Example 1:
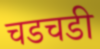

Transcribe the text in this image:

चडचडी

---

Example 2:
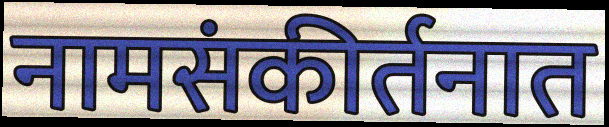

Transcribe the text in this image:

नामसंकीर्तनात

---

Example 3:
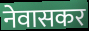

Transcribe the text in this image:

नेवासकर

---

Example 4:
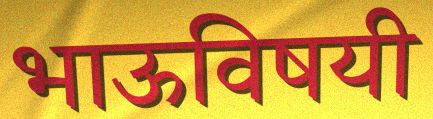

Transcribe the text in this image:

भाऊविषयी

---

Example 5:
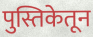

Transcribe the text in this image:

पुस्तिकेतून